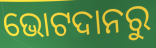
ଭୋଟଦାନରୁ